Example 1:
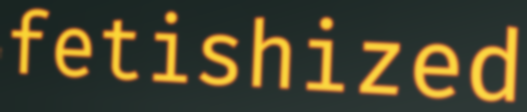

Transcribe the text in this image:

fetishized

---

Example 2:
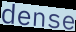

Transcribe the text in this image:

dense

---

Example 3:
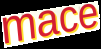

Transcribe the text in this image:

mace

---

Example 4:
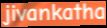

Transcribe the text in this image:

jivankatha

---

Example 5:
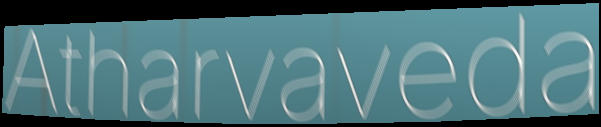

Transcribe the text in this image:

Atharvaveda